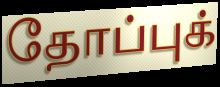
தோப்புக்